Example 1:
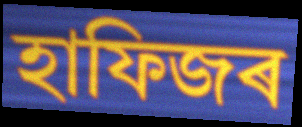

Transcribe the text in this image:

হাফিজৰ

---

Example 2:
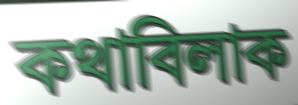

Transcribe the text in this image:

কথাবিলাক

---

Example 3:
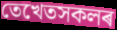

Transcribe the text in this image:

তেখেতসকলৰ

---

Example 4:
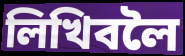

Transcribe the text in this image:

লিখিবলৈ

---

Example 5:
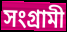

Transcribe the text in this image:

সংগ্ৰামী